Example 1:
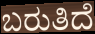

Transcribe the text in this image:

ಬರುತಿದೆ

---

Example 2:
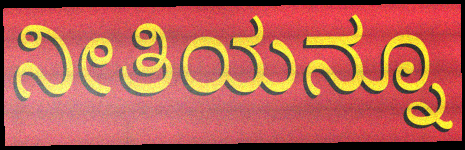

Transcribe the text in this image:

ನೀತಿಯನ್ನೂ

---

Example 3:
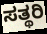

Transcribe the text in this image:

ಸತ್ಥರಿ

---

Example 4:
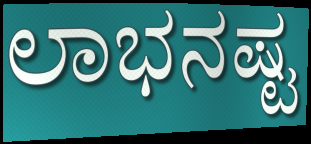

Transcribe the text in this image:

ಲಾಭನಷ್ಟ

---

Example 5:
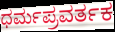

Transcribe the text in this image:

ಧರ್ಮಪ್ರವರ್ತಕ